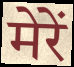
मेरें